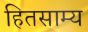
हितसाम्य